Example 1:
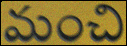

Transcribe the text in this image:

మంచి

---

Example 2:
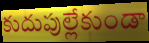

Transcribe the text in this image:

కుదుపుల్లేకుండా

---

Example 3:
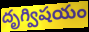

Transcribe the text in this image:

దృగ్విషయం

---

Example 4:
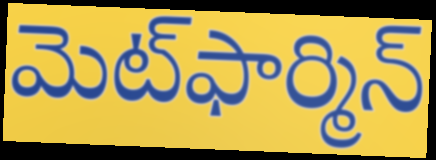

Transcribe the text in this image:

మెట్‌ఫార్మిన్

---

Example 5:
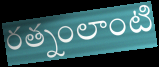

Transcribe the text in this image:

రత్నంలాంటి